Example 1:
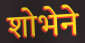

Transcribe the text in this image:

शोभेने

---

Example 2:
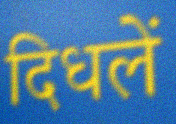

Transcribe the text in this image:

दिधलें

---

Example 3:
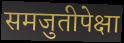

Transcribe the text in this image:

समजुतीपेक्षा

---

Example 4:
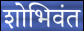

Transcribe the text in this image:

शोभिवंत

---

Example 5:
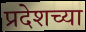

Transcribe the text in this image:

प्रदेशच्या